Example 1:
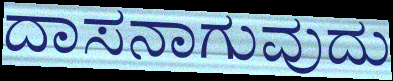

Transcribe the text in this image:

ದಾಸನಾಗುವುದು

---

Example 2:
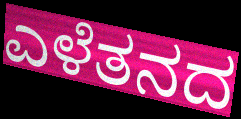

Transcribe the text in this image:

ಎಳೆತನದ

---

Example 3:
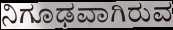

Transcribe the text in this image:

ನಿಗೂಢವಾಗಿರುವ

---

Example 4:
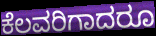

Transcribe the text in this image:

ಕೆಲವರಿಗಾದರೂ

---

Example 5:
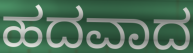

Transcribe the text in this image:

ಹದವಾದ